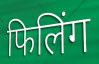
फिलिंग